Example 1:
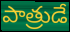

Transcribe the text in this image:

పాత్రుడే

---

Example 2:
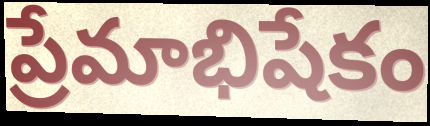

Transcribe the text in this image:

ప్రేమాభిషేకం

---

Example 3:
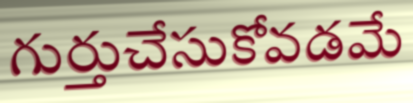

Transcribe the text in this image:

గుర్తుచేసుకోవడమే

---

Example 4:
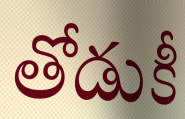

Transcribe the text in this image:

తోడుకీ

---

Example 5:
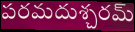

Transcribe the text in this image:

పరమదుశ్చరమ్